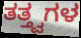
ತತ್ತ್ವಗಳ